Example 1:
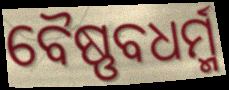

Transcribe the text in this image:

ବୈଷ୍ଣବଧର୍ମ୍ମ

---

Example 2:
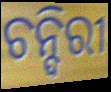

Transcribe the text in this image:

ଚନ୍ଦିରୀ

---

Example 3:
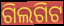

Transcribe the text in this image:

ଗିଲଗିଟ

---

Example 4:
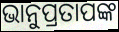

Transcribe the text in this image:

ଭାନୁପ୍ରତାପଙ୍କ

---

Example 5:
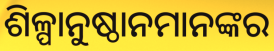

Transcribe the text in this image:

ଶିଳ୍ପାନୁଷ୍ଠାନମାନଙ୍କର